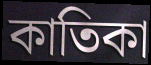
কাতিকা